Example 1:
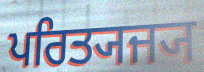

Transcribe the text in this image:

ਪਰਿਤ੍ਯਜ੍ਯ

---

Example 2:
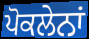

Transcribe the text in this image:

ਪੋਕਲੇਨਾਂ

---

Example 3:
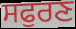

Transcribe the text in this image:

ਸਫੁਰਣ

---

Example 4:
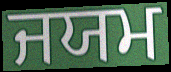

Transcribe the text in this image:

ਜਯਮ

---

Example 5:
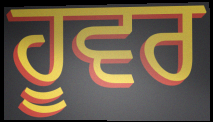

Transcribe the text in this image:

ਹੂਵਰ